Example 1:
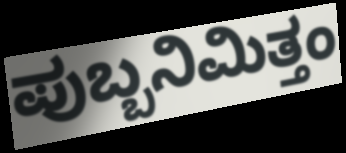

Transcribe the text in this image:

ಪುಬ್ಬನಿಮಿತ್ತಂ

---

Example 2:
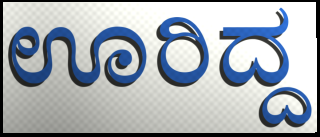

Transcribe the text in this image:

ಊರಿದ್ದ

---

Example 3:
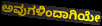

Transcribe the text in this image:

ಅವುಗಳಿಂದಾಗಿಯೇ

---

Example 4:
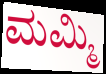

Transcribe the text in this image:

ಮಮ್ಮಿ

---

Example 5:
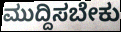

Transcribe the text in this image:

ಮುದ್ದಿಸಬೇಕು